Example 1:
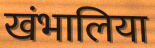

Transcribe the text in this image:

खंभालिया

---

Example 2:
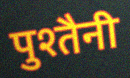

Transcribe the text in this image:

पुश्तैनी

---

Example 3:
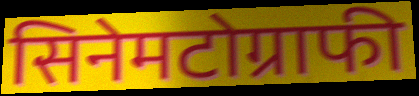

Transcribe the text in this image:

सिनेमटोग्राफी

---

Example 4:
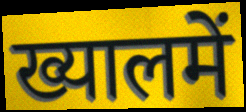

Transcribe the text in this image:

ख्यालमें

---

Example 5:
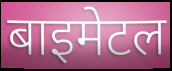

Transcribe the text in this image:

बाइमेटल